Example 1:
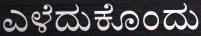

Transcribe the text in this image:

ಎಳೆದುಕೊಂದು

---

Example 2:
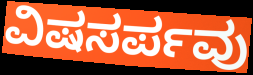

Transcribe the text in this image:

ವಿಷಸರ್ಪವು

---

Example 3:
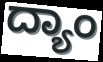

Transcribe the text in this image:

ದ್ಯಾಂ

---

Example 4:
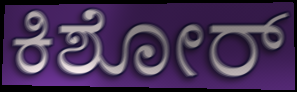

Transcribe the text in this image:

ಕಿಶೋರ್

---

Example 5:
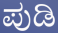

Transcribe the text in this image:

ಪುಡಿ